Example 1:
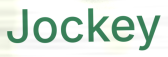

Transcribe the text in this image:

Jockey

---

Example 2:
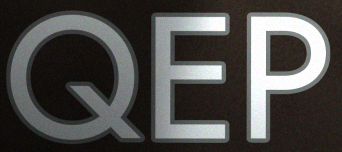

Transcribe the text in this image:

QEP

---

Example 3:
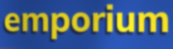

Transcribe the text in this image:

emporium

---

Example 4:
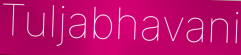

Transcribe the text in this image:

Tuljabhavani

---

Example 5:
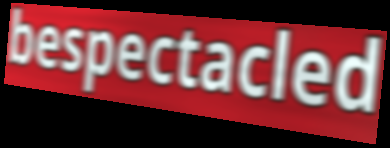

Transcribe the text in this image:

bespectacled